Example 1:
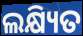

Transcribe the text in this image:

ଲକ୍ଷ୍ୟିତ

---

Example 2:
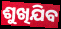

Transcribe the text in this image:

ଶୁଖିଯିବ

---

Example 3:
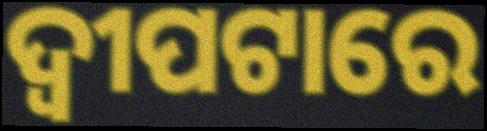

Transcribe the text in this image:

ଦ୍ୱୀପଟାରେ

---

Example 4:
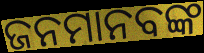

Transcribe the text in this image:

ଜନମାନବଙ୍କ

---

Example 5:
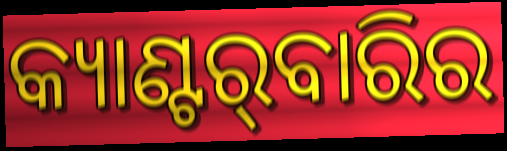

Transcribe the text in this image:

କ୍ୟାଣ୍ଟର୍‌ବାରିର